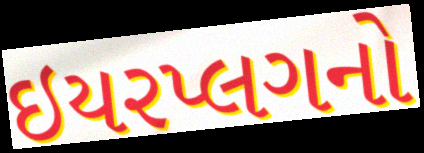
ઇયરપ્લગનો